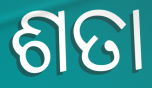
ଶତା